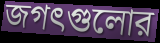
জগৎগুলোর